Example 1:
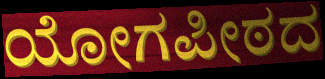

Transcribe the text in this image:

ಯೋಗಪೀಠದ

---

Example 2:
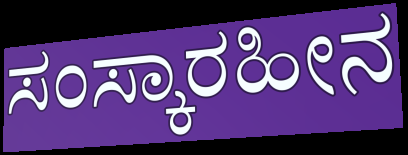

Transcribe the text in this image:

ಸಂಸ್ಕಾರಹೀನ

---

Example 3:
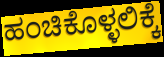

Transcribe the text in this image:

ಹಂಚಿಕೊಳ್ಳಲಿಕ್ಕೆ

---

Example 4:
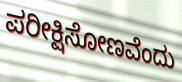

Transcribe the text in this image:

ಪರೀಕ್ಷಿಸೋಣವೆಂದು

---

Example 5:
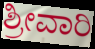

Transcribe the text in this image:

ಶ್ರೀವಾರಿ